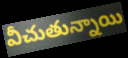
వీచుతున్నాయి